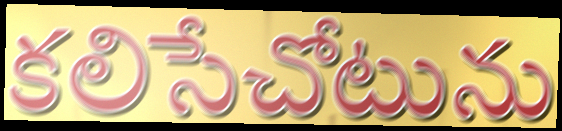
కలిసేచోటును